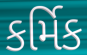
કર્મિક